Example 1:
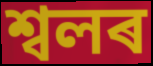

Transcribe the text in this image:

শ্বলৰ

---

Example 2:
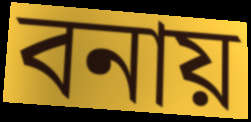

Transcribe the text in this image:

বনায়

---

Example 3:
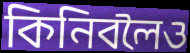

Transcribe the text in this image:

কিনিবলৈও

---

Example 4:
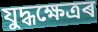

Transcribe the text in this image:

যুদ্ধক্ষেত্ৰৰ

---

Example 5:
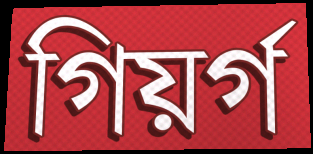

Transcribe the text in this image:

গিয়ৰ্গ